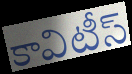
కావిటీస్